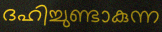
ദഹിച്ചുണ്ടാകുന്ന